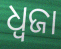
ଧ୍ୱଜା